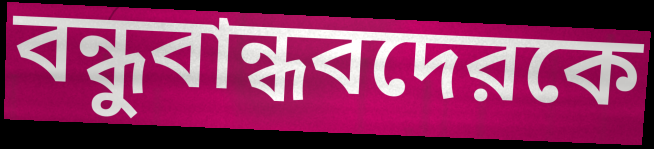
বন্ধুবান্ধবদেরকে